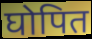
घोपित